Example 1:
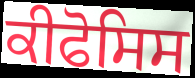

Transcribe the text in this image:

ਕੀਫੋਸਿਸ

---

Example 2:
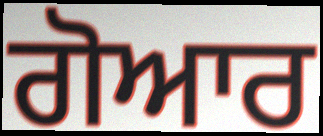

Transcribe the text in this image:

ਗੋਆਰ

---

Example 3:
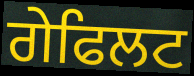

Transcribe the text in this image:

ਗੇਫਿਲਟ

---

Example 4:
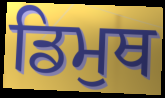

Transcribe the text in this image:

ਡਿਮੁਥ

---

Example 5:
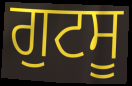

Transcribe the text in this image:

ਗੁਟਸੂ